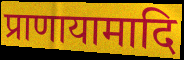
प्राणायामादि